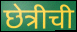
छेत्रीची